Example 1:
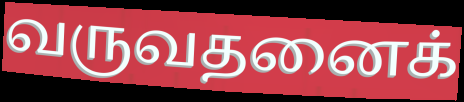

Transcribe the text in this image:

வருவதனைக்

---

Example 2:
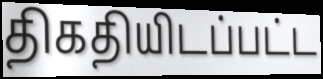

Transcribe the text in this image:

திகதியிடப்பட்ட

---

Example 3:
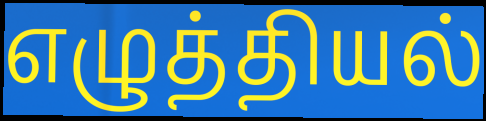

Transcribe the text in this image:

எழுத்தியல்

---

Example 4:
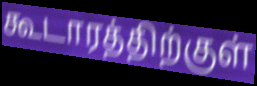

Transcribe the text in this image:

கூடாரத்திற்குள்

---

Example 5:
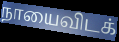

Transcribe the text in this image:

நாயைவிடக்